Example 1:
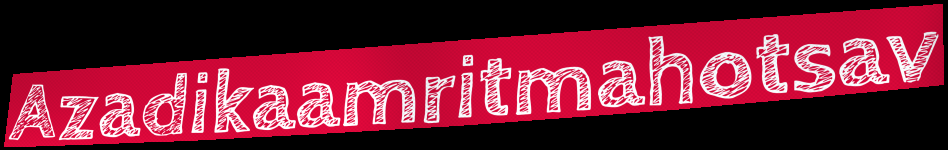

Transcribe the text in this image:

Azadikaamritmahotsav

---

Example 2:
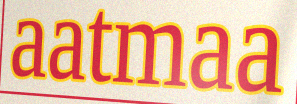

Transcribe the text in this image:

aatmaa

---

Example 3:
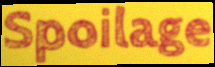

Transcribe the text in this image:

Spoilage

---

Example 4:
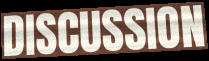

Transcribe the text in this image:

DISCUSSION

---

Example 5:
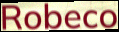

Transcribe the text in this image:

Robeco